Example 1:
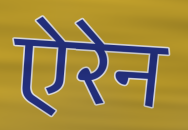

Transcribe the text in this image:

ऐरेन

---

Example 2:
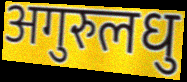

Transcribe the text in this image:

अगुरुलधु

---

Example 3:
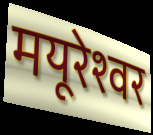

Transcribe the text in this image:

मयूरेश्वर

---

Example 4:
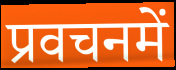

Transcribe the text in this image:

प्रवचनमें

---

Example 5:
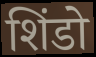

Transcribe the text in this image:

शिंडो